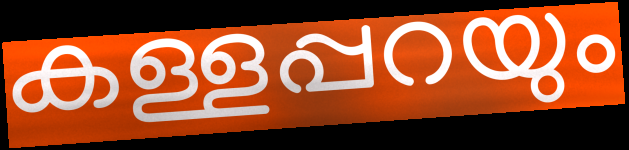
കള്ളപ്പറയും